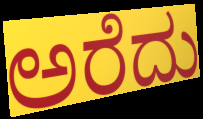
ಅರೆದು